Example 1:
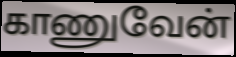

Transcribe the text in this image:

காணுவேன்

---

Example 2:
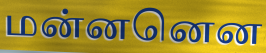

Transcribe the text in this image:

மன்னனென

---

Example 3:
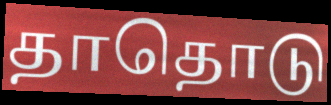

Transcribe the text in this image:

தாதொடு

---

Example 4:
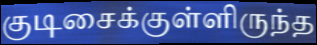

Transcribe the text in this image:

குடிசைக்குள்ளிருந்த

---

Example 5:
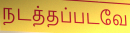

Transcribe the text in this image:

நடத்தப்படவே